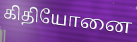
கிதியோனை